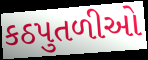
કઠપુતળીઓ